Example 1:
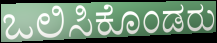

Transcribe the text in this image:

ಒಲಿಸಿಕೊಂಡರು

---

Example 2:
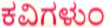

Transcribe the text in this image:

ಕವಿಗಳುಂ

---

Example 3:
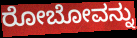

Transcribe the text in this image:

ರೋಬೋವನ್ನು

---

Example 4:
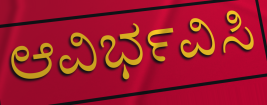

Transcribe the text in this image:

ಆವಿರ್ಭವಿಸಿ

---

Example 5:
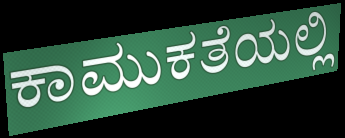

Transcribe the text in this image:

ಕಾಮುಕತೆಯಲ್ಲಿ